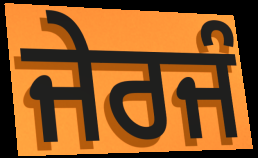
ਜੇਰਜੰ